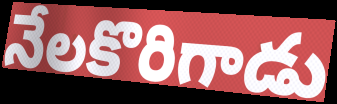
నేలకొరిగాడు